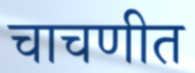
चाचणीत